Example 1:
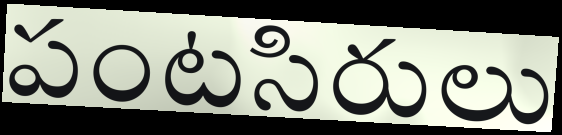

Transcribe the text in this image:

పంటసిరులు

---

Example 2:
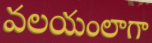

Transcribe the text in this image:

వలయంలాగా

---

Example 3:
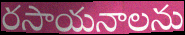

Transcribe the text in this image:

రసాయనాలను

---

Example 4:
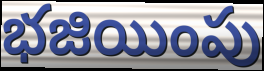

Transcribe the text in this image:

భజియింపు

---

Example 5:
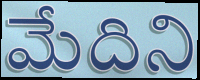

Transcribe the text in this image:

మేదిని